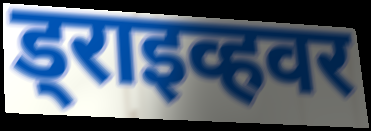
ड्राइव्हवर